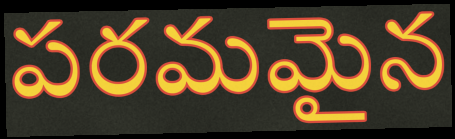
పరమమైన